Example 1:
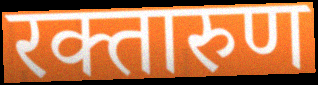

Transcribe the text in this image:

रक्तारुण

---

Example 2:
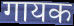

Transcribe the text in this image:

गायक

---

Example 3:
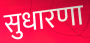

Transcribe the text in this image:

सुधारणा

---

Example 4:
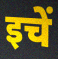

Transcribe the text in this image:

इचें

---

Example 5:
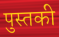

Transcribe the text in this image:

पुस्तकी